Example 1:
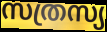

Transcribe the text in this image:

സത്രസ്യ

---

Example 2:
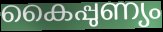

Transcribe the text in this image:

കൈപ്പുണ്യം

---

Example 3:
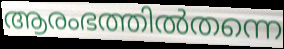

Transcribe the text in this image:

ആരംഭത്തിൽതന്നെ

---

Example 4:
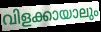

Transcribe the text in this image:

വിളക്കായാലും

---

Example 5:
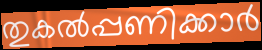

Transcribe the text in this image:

തുകൽപ്പണിക്കാർ